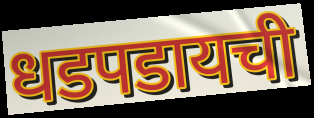
धडपडायची